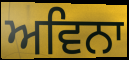
ਅਵਿਨਾ